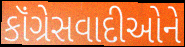
કૉંગ્રેસવાદીઓને